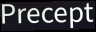
Precept